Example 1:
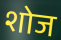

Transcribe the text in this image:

शोज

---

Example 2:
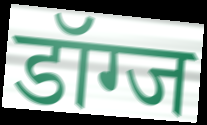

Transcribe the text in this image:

डॉग्ज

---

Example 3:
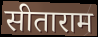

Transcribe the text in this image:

सीताराम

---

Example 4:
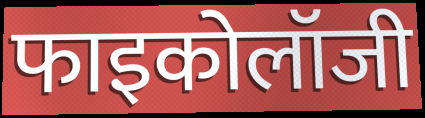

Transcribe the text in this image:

फाइकोलॉजी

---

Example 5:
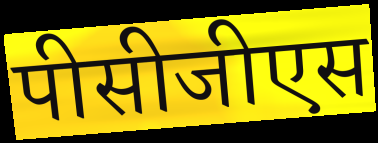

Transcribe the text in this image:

पीसीजीएस